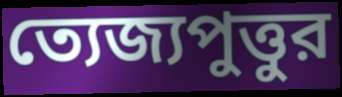
ত্যেজ্যপুত্তুর